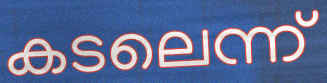
കടലെന്ന്